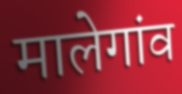
मालेगांव